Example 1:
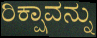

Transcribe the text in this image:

ರಿಕ್ಷಾವನ್ನು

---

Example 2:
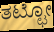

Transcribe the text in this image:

ತಟ್ಟೋ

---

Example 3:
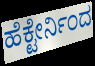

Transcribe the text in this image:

ಹೆಕ್ಟೇರ್ನಿಂದ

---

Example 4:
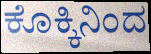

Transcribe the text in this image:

ಕೊಕ್ಕಿನಿಂದ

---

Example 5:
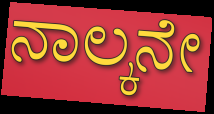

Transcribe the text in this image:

ನಾಲ್ಕನೇ